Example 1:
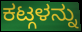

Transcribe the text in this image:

ಕಟ್ಗಳನ್ನು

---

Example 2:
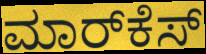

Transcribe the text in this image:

ಮಾರ್‌ಕೆಸ್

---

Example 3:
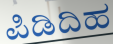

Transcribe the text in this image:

ಪಿಡಿದಿಹ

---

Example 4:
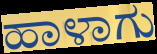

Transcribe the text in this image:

ಹಾಳಾಗು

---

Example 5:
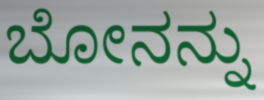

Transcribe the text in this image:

ಬೋನನ್ನು